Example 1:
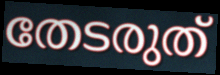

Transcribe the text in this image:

തേടരുത്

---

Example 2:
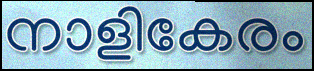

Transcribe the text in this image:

നാളികേരം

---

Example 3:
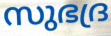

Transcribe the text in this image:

സുഭദ്ര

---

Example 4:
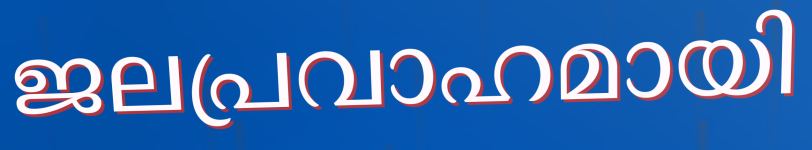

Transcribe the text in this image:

ജലപ്രവാഹമായി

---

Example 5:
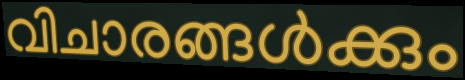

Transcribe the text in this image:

വിചാരങ്ങൾക്കും